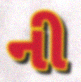
ની